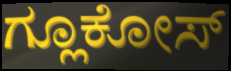
ಗ್ಲೂಕೋಸ್